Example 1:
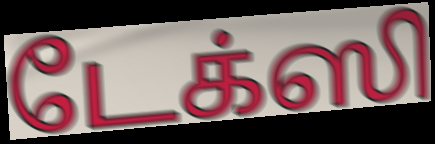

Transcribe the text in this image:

டேக்ஸி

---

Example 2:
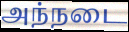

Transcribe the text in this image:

அந்நடை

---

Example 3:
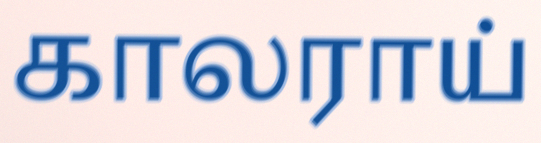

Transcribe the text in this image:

காலராய்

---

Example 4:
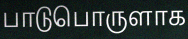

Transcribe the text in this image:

பாடுபொருளாக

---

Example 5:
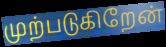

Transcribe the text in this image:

முற்படுகிறேன்